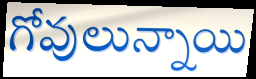
గోవులున్నాయి